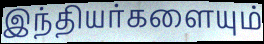
இந்தியர்களையும்